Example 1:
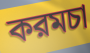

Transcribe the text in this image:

করমচা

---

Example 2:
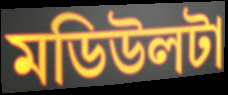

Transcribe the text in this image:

মডিউলটা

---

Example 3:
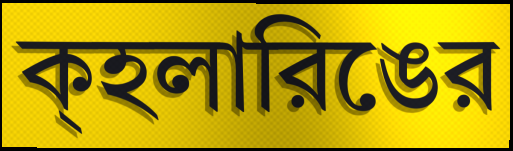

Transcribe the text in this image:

ক্হলারিঙের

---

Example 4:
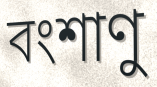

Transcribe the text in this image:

বংশাণু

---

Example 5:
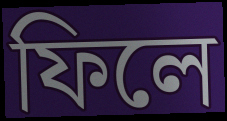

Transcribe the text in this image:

ফিলে